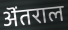
ऄंतराल